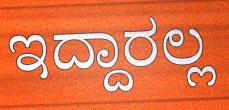
ಇದ್ದಾರಲ್ಲ